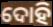
ଦୋହି